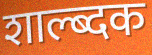
शाल्ब्दक